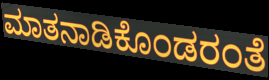
ಮಾತನಾಡಿಕೊಂಡರಂತೆ